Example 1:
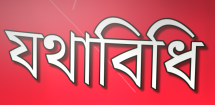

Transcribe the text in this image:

যথাবিধি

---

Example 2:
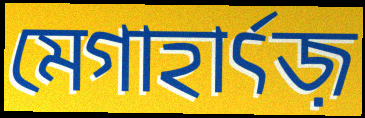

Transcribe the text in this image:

মেগাহার্ৎজ়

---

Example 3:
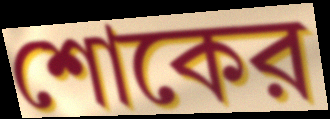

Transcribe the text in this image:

শোকের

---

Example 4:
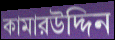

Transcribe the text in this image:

কামারউদ্দিন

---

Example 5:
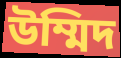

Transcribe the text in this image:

উম্মিদ